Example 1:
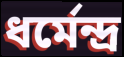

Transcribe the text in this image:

ধৰ্মেন্দ্ৰ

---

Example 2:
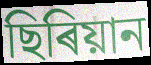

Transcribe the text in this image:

ছিৰিয়ান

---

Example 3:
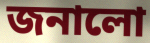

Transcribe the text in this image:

জনালো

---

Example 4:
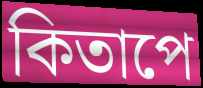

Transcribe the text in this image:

কিতাপে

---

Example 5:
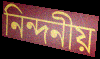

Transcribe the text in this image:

নিন্দনীয়